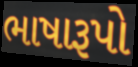
ભાષારૂપો